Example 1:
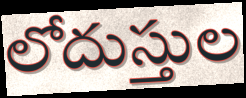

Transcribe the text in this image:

లోదుస్తుల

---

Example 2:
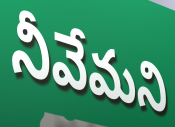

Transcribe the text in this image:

నీవేమని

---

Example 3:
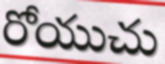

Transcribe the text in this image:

రోయుచు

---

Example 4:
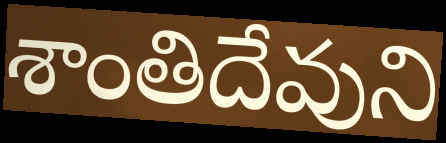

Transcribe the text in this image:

శాంతిదేవుని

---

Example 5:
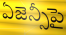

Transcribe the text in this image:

ఏజెన్సీపై